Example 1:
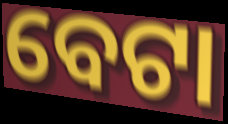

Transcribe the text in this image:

ବେଟା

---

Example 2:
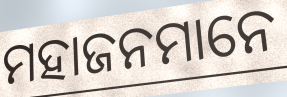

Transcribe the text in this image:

ମହାଜନମାନେ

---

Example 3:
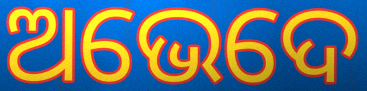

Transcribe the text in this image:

ଅଭେଦେ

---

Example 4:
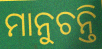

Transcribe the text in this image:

ମାନୁଚନ୍ତି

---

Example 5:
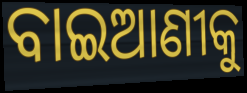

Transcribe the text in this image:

ବାଇଆଣୀକୁ